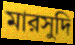
মারসুদি